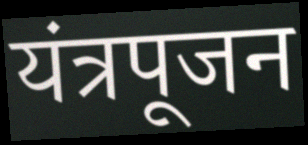
यंत्रपूजन